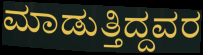
ಮಾಡುತ್ತಿದ್ದವರ